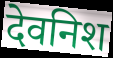
देवनिश